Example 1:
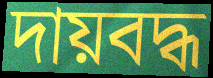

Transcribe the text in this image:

দায়বদ্ধ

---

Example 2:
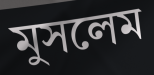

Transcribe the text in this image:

মুসলেম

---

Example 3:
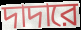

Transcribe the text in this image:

দাদারে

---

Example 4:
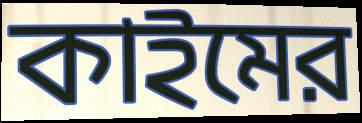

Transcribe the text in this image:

কাইমের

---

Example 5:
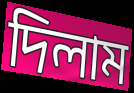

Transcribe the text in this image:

দিলাম